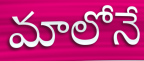
మాలోనే